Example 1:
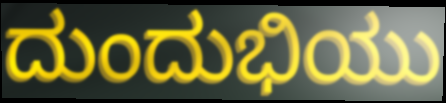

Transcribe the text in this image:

ದುಂದುಭಿಯು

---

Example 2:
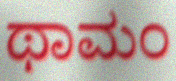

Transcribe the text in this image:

ಥಾಮಂ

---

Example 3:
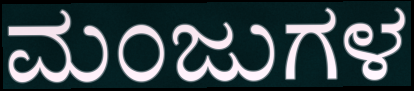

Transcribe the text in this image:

ಮಂಜುಗಳ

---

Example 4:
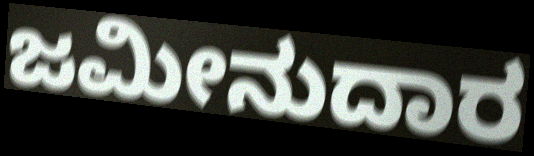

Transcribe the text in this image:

ಜಮೀನುದಾರ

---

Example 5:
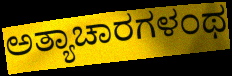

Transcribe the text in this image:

ಅತ್ಯಾಚಾರಗಳಂಥ